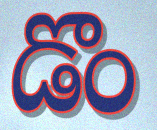
డొం